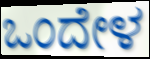
ಒಂದೇಳ